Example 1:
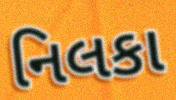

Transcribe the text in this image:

નિલકા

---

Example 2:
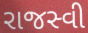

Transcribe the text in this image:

રાજસ્વી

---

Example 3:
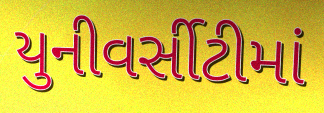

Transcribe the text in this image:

યુનીવર્સીટીમાં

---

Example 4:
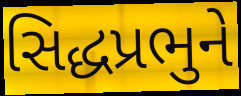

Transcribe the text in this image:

સિદ્ધપ્રભુને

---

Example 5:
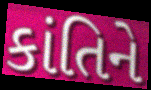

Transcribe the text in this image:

કાંતિને